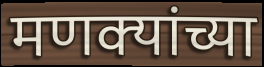
मणक्यांच्या